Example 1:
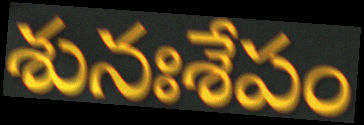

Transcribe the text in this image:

శునఃశేపం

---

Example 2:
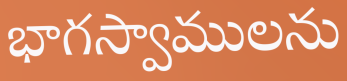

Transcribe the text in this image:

భాగస్వాములను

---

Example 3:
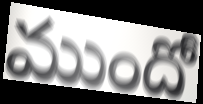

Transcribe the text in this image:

ముందో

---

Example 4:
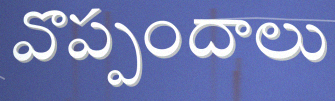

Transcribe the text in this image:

వొప్పందాలు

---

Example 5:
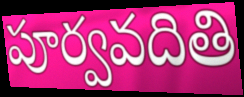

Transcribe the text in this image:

పూర్వవదితి